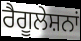
ਰੈਗੂਲੇਸ਼ਨਾਂ